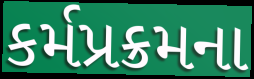
કર્મપ્રક્રમના